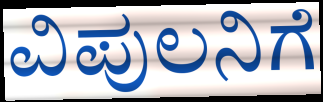
ವಿಪುಲನಿಗೆ